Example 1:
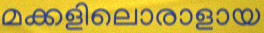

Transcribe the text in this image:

മക്കളിലൊരാളായ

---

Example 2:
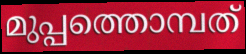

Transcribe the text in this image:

മുപ്പത്തൊമ്പത്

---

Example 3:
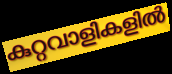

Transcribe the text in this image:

കുറ്റവാളികളിൽ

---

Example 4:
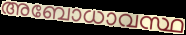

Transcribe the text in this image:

അബോധാവസ്ഥ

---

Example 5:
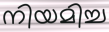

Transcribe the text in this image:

നിയമിച്ച